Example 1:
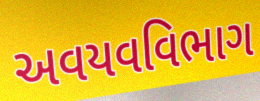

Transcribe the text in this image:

અવયવવિભાગ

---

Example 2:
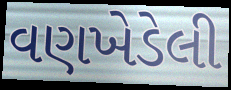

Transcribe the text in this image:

વણખેડેલી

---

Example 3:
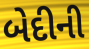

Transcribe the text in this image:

બેદીની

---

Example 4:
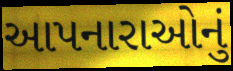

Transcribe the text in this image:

આપનારાઓનું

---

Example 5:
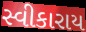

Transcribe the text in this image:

સ્વીકારાય